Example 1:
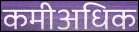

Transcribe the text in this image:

कमीअधिक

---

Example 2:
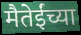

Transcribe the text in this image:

मैतेईंच्या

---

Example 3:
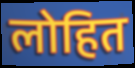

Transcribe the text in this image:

लोहित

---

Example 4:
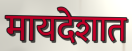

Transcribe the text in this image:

मायदेशात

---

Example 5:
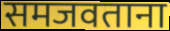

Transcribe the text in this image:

समजवताना